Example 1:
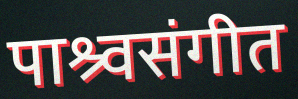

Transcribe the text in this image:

पाश्र्वसंगीत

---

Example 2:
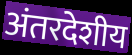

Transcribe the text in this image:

अंतरदेशीय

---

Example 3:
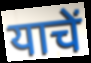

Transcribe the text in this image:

याचें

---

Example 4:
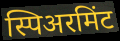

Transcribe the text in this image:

स्पिअरमिंट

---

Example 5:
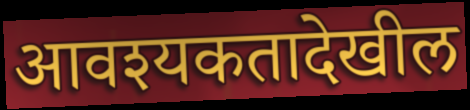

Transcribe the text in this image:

आवश्यकतादेखील